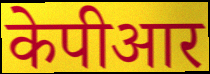
केपीआर